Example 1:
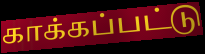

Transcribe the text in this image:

காக்கப்பட்டு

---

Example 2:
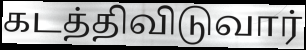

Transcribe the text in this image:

கடத்திவிடுவார்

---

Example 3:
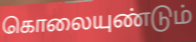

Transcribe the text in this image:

கொலையுண்டும்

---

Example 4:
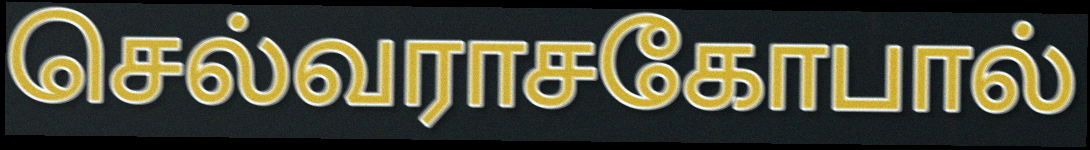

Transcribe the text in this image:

செல்வராசகோபால்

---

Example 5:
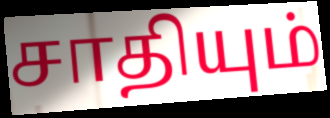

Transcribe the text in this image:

சாதியும்